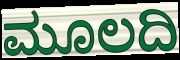
ಮೂಲದಿ